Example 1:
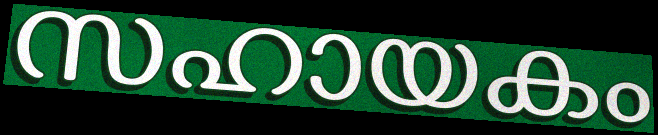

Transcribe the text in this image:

സഹായകം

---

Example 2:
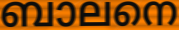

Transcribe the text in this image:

ബാലനെ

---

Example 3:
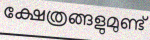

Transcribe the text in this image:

ക്ഷേത്രങ്ങളുമുണ്ട്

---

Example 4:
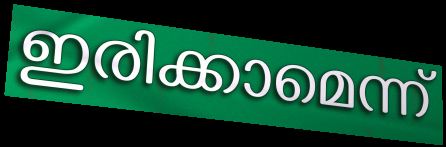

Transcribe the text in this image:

ഇരിക്കാമെന്ന്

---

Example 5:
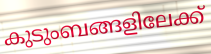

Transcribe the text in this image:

കുടുംബങ്ങളിലേക്ക്